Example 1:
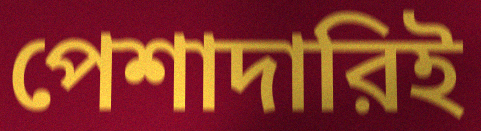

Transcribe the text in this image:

পেশাদারিই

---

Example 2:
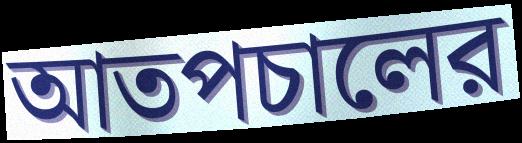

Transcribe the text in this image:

আতপচালের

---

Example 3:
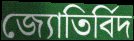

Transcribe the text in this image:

জ্যোতির্বিদ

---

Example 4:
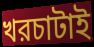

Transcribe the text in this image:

খরচাটাই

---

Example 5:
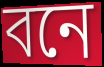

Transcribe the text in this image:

বনে